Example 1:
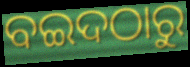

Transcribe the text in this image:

ବଇଦଠାରୁ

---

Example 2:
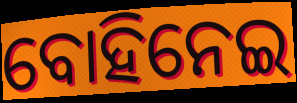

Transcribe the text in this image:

ବୋହିନେଇ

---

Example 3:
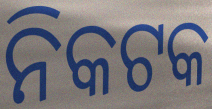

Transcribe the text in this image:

ନିକଟକ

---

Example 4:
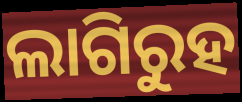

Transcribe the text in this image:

ଲାଗିରୁହ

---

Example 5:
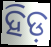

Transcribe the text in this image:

ହିଡ଼